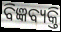
ବିଜ୍ଞବ୍ୟକ୍ତି